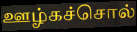
ஊழ்கச்சொல்